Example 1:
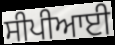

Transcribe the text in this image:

ਸੀਪੀਆਈ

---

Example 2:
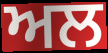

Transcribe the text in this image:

ਅਲ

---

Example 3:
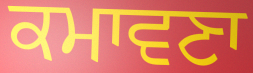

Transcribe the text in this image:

ਕਮਾਵਣਾ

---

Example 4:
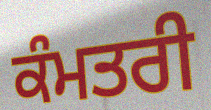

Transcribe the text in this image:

ਕੰਮਤਰੀ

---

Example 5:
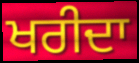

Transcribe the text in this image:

ਖਰੀਦਾ